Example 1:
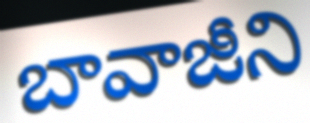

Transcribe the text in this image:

బావాజీని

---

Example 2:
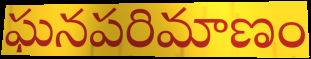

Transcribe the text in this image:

ఘనపరిమాణం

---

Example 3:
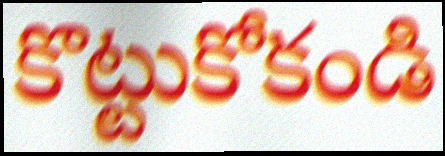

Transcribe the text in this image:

కొట్టుకోకండి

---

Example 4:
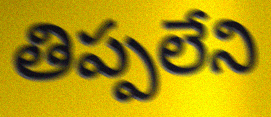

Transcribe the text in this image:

తిప్పలేని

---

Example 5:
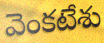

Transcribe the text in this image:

వెంకటేశు